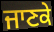
ਜਾਣਕੇ